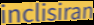
inclisiran